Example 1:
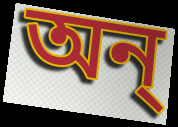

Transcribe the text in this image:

অন্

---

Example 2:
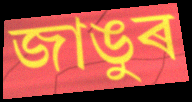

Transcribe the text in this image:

জাঙুৰ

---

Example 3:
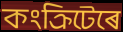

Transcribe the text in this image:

কংক্ৰিটেৰে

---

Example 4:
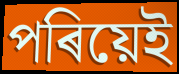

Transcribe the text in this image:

পৰিয়েই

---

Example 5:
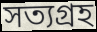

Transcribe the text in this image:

সত্যগ্ৰহ